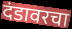
दंडावरचा